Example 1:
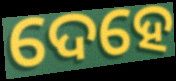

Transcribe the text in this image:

ଦେହେ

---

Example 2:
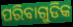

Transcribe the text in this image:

ପରିବାଗୁଡିକ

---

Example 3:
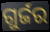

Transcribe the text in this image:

ଗୁର୍ଜର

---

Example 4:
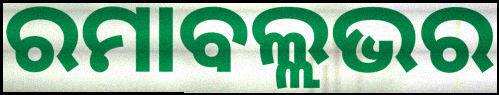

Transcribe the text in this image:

ରମାବଲ୍ଲଭର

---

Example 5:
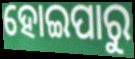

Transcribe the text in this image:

ହୋଇପାରୁ